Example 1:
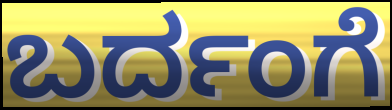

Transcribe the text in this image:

ಬರ್ದಂಗೆ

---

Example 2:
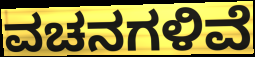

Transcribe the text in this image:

ವಚನಗಳಿವೆ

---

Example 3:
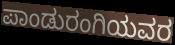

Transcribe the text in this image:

ಪಾಂಡುರಂಗಿಯವರ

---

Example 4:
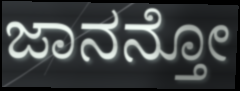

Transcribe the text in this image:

ಜಾನನ್ತೋ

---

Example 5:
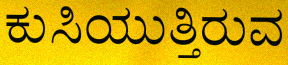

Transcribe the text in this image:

ಕುಸಿಯುತ್ತಿರುವ